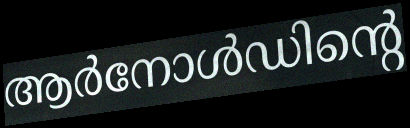
ആർനോൾഡിന്റെ